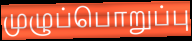
முழுப்பொறுப்பு